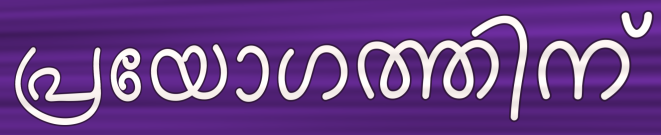
പ്രയോഗത്തിന്